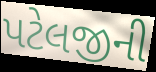
પટેલજીની